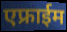
एफ्राईम